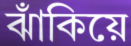
ঝাঁকিয়ে